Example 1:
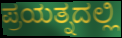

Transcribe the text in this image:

ಪ್ರಯತ್ನದಲ್ಲಿ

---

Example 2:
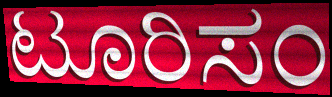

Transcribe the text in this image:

ಟೂರಿಸಂ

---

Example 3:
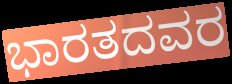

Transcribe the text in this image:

ಭಾರತದವರ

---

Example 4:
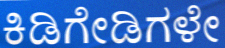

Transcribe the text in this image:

ಕಿಡಿಗೇಡಿಗಳೇ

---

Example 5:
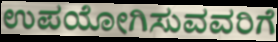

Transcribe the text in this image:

ಉಪಯೋಗಿಸುವವರಿಗೆ